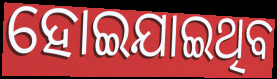
ହୋଇଯାଇଥିବ